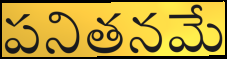
పనితనమే